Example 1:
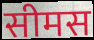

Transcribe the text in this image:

सीमस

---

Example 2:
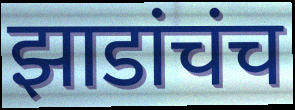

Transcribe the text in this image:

झाडांचंच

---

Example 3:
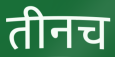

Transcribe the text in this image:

तीनच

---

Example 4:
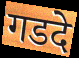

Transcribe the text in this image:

गडदे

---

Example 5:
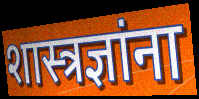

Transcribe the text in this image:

शास्त्रज्ञांना